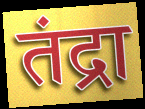
तंद्रा